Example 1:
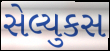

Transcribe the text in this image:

સેલ્યુકસ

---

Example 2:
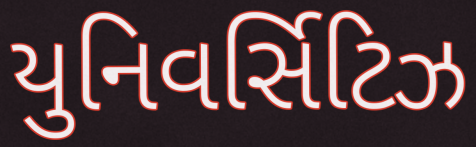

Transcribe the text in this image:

યુનિવર્સિટિઝ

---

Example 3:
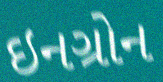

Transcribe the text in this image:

ઇનગ્રોન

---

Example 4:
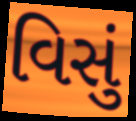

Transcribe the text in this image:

વિસું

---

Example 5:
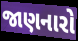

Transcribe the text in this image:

જાણનારો